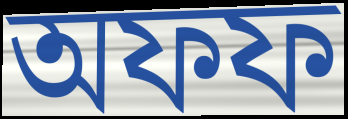
অফফ